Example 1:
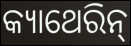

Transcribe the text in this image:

କ୍ୟାଥେରିନ୍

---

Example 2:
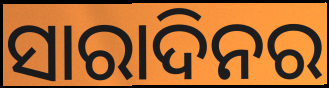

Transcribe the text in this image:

ସାରାଦିନର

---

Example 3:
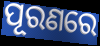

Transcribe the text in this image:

ପୂରଣରେ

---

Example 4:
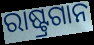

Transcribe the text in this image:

ରାଷ୍ଟ୍ରଗାନ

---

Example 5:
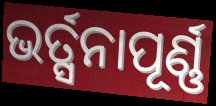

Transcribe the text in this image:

ଭର୍ତ୍ସନାପୂର୍ଣ୍ଣ